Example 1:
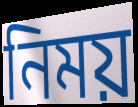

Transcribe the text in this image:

নিময়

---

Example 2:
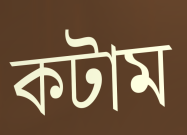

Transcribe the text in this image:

কটাম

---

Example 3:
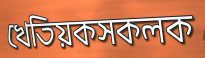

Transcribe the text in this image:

খেতিয়কসকলক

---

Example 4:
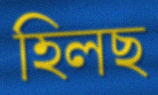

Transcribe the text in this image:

হিলছ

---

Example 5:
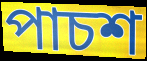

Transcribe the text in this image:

পাচশ